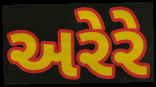
અરેરે